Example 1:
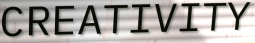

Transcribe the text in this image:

CREATIVITY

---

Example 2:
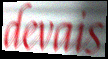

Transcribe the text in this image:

devais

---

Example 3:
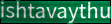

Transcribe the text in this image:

ishtavaythu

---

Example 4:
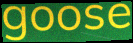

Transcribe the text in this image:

goose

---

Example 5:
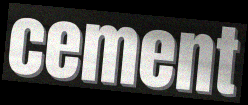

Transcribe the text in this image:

cement